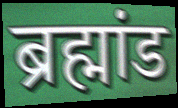
ब्रह्मांड